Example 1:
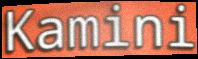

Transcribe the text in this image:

Kamini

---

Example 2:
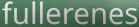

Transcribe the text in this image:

fullerenes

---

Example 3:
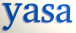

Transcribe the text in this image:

yasa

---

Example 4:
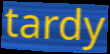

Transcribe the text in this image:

tardy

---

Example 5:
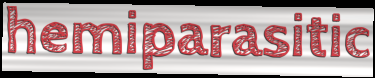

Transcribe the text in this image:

hemiparasitic